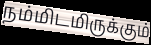
நம்மிடமிருக்கும்